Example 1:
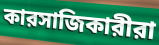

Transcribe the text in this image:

কারসাজিকারীরা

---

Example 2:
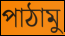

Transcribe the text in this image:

পাঠামু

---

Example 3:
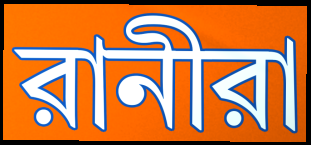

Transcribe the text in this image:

রানীরা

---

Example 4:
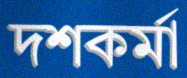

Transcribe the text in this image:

দশকর্মা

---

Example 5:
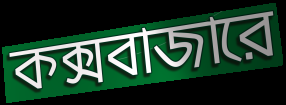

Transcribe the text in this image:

কক্সবাজারে